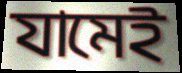
যামেই